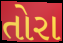
તોરા